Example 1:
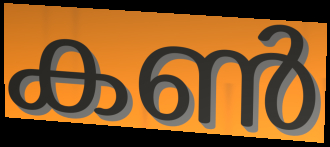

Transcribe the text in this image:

കൺ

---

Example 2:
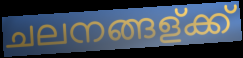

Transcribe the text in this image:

ചലനങ്ങള്ക്ക്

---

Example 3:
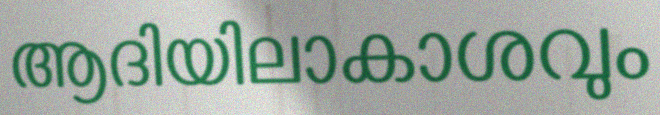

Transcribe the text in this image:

ആദിയിലാകാശവും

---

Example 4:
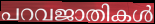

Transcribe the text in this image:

പറവജാതികൾ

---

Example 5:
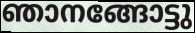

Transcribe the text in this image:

ഞാനങ്ങോട്ടു